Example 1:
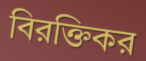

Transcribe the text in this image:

বিরক্তিকর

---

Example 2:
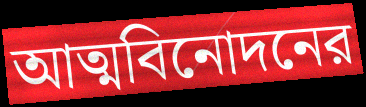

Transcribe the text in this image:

আত্মবিনোদনের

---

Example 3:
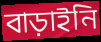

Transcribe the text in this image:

বাড়াইনি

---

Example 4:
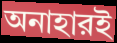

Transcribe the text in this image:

অনাহারই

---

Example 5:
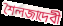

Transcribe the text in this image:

শৈলজাদেবী